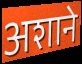
अशाने